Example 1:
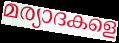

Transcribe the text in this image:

മര്യാദകളെ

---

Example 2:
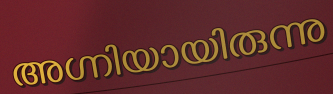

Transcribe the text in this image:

അഗ്നിയായിരുന്നു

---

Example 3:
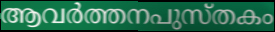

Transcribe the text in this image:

ആവർത്തനപുസ്തകം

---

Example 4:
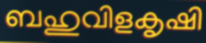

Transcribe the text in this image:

ബഹുവിളകൃഷി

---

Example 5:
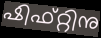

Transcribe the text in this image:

ഷിഫ്റ്റിനു